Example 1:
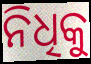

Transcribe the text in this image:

ନିଧିକୁ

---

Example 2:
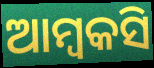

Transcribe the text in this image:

ଆମ୍ବକସି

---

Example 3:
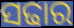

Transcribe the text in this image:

ସଢାର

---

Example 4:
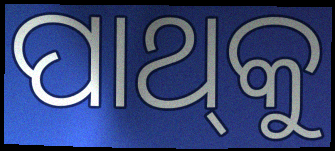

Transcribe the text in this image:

ପାଥ୍‌କୁ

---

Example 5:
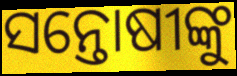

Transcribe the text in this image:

ସନ୍ତୋଷୀଙ୍କୁ